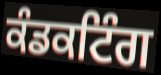
ਕੰਡਕਟਿੰਗ